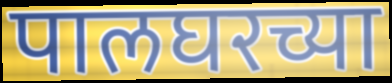
पालघरच्या